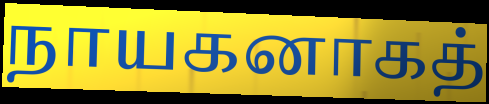
நாயகனாகத்